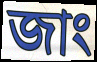
জাং